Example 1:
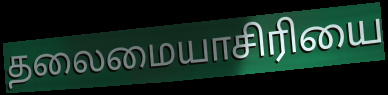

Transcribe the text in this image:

தலைமையாசிரியை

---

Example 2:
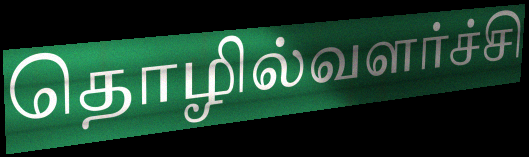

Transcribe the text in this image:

தொழில்வளர்ச்சி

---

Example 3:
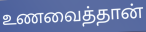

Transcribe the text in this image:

உணவைத்தான்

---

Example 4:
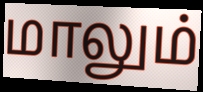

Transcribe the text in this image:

மாலும்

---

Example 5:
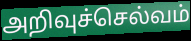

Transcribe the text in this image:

அறிவுச்செல்வம்